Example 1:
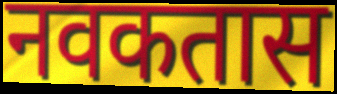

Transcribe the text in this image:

नवकतास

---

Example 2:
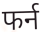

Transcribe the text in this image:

फर्न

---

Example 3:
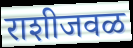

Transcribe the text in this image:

राशीजवळ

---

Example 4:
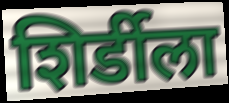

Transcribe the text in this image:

शिर्डीला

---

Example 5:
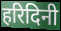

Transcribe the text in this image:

हरिदिनी